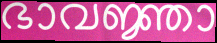
ഭാവജ്ഞാ